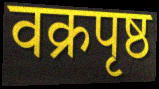
वक्रपृष्ठ